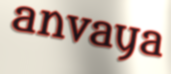
anvaya